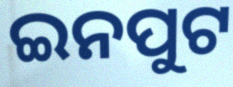
ଇନପୁଟ